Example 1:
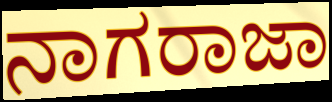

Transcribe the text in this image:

ನಾಗರಾಜಾ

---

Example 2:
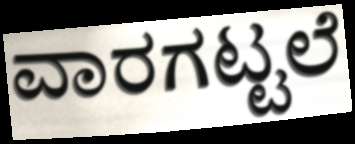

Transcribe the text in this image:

ವಾರಗಟ್ಟಲೆ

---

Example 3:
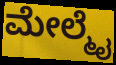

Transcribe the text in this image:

ಮೇಲ್ಮೈ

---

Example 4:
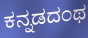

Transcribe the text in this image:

ಕನ್ನಡದಂಥ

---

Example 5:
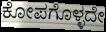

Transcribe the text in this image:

ಕೋಪಗೊಳ್ಳದೇ